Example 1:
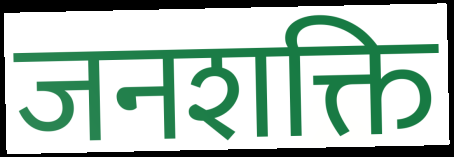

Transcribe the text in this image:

जनशक्ति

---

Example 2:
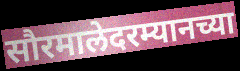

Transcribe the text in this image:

सौरमालेदरम्यानच्या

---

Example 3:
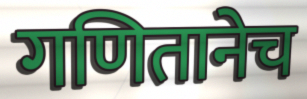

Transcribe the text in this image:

गणितानेच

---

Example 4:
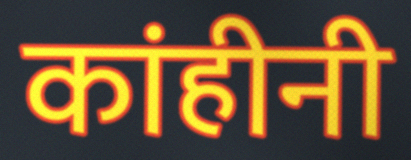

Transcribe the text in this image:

कांहीनी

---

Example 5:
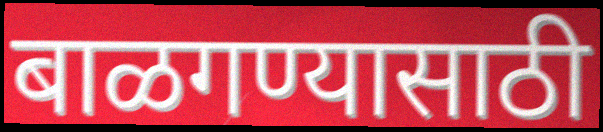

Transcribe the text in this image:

बाळगण्यासाठी